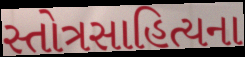
સ્તોત્રસાહિત્યના